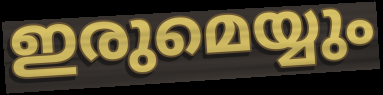
ഇരുമെയ്യും